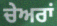
ਚੇਅਰਾਂ